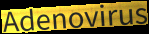
Adenovirus